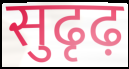
सुढृढ़